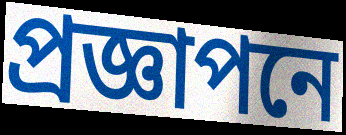
প্রজ্ঞাপনে